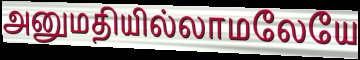
அனுமதியில்லாமலேயே